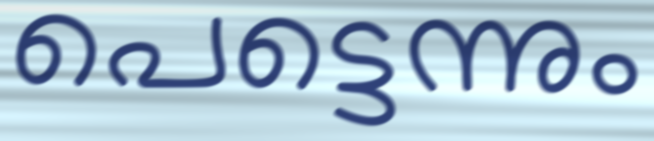
പെട്ടെന്നും